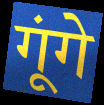
गूंगे